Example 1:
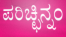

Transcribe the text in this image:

ಪರಿಚ್ಛಿನ್ನಂ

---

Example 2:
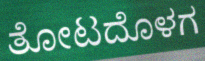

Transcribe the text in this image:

ತೋಟದೊಳಗ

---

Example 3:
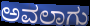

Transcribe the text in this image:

ಅವಲಾಗು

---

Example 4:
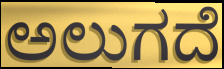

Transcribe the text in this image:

ಅಲುಗದೆ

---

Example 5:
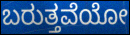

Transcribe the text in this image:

ಬರುತ್ತವೆಯೋ